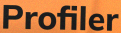
Profiler